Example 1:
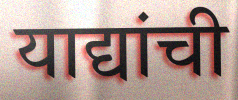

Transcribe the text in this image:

याद्यांची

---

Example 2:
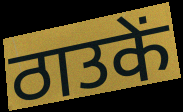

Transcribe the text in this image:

ठाउकें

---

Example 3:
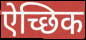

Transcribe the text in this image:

ऐच्छिक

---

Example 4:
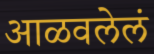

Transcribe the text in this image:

आळवलेलं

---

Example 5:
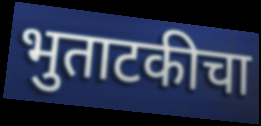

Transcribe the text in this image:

भुताटकीचा